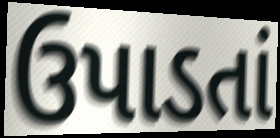
ઉપાડતાં